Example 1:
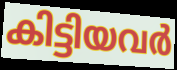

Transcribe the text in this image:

കിട്ടിയവർ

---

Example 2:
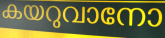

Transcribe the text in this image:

കയറുവാനോ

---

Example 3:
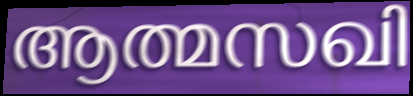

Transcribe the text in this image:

ആത്മസഖി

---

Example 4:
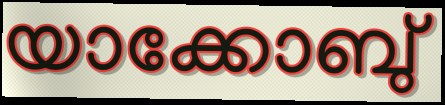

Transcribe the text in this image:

യാക്കോബു്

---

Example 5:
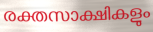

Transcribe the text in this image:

രക്തസാക്ഷികളും